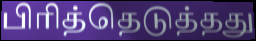
பிரித்தெடுத்தது